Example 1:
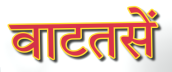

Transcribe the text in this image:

वाटतसें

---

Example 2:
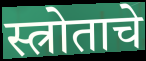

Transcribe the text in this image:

स्त्रोताचे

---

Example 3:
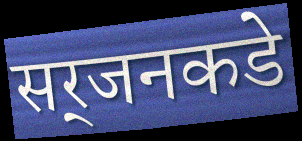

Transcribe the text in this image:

सर्जनकडे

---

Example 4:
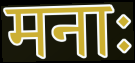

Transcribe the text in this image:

मनाः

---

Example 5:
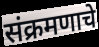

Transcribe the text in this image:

संक्रमणाचे